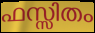
ഫസ്സിതം